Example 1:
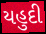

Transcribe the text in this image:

યહુદી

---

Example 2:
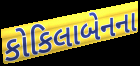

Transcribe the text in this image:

કોકિલાબેનના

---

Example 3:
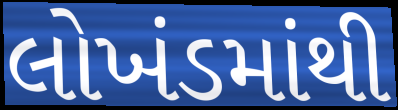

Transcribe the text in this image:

લોખંડમાંથી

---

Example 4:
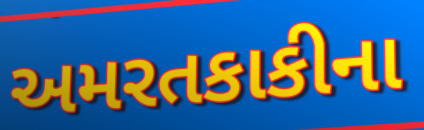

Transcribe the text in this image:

અમરતકાકીના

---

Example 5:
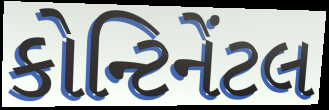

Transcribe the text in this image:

કોન્ટિનેંટલ